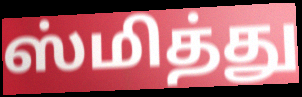
ஸ்மித்து